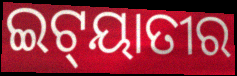
ଇଟ୍‍ୟାତୀର